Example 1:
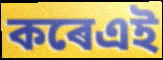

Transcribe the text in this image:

কৰেএই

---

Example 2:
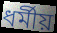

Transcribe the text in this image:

ধৰ্মীয়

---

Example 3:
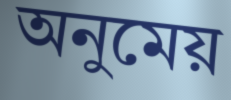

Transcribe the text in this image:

অনুমেয়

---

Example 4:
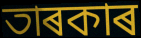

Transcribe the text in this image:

তাৰকাৰ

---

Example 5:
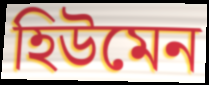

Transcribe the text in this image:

হিউমেন